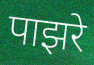
पाझरे